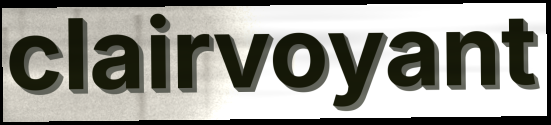
clairvoyant